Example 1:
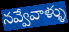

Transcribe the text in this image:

నవ్వేవాళ్ళు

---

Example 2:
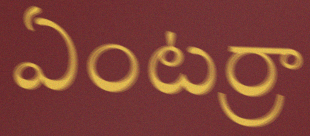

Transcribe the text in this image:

ఏంటర్రా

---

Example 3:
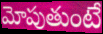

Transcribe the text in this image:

మోపుతుంటే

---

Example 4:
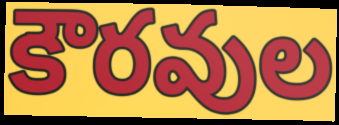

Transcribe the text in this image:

కౌరవుల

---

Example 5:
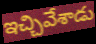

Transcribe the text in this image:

ఇచ్చివేశాడు